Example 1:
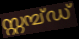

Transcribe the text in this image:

സ്റ്റമ്പ്ഡ്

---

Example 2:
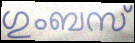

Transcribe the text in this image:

ഗുംബസ്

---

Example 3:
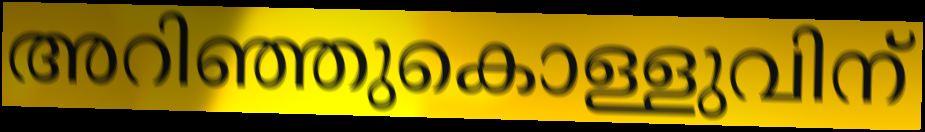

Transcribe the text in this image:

അറിഞ്ഞുകൊള്ളുവിന്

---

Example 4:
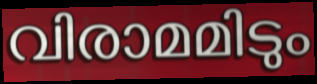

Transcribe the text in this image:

വിരാമമിടും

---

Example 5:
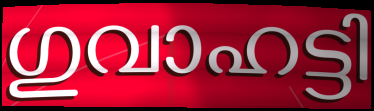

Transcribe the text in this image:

ഗുവാഹട്ടി